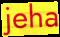
jeha